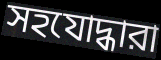
সহযোদ্ধারা